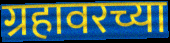
ग्रहावरच्या